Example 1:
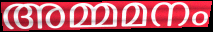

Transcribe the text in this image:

അമ്മമനം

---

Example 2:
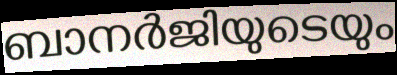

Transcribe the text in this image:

ബാനർജിയുടെയും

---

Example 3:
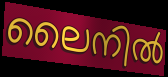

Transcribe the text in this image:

ലൈനിൽ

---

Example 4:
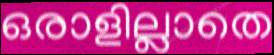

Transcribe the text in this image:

ഒരാളില്ലാതെ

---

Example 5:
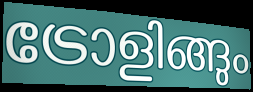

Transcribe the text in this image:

ട്രോളിങ്ങും